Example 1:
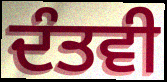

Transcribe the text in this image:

ਦੰਤਵੀ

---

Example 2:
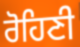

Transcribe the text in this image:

ਰੋਹਿਣੀ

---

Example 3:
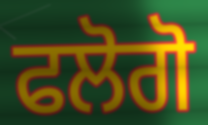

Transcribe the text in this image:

ਫਲੋਗੋ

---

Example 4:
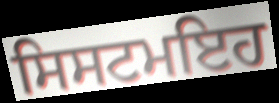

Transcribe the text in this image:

ਸਿਸਟਮਇਹ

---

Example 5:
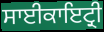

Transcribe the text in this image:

ਸਾਈਕਾਇਟ੍ਰੀ